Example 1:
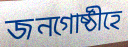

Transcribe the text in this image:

জনগোষ্ঠীহে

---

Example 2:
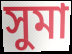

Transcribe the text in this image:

সুমা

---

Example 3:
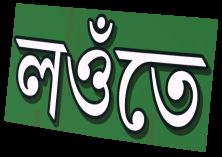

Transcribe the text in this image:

লওঁতে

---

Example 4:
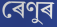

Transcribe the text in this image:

ৰেণুৰ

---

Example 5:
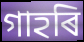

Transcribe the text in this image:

গাহৰি